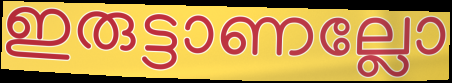
ഇരുട്ടാണല്ലോ